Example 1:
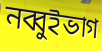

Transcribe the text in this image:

নব্বুইভাগ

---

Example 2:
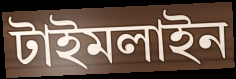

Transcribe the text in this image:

টাইমলাইন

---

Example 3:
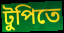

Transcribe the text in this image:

টুপিতে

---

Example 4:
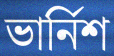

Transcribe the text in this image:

ভার্নিশ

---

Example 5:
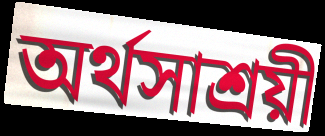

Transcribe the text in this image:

অর্থসাশ্রয়ী